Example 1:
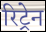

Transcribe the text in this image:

रिट्रेन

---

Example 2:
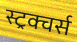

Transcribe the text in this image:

स्ट्रक्चर्स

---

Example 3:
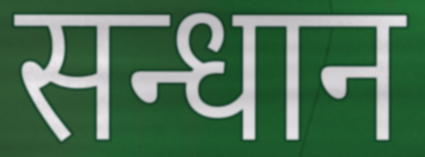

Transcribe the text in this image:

सन्धान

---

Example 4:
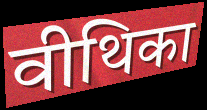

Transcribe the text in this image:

वीथिका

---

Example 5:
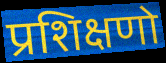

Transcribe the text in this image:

प्रशिक्षणो